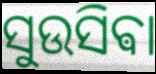
ସୁଉସିଵା